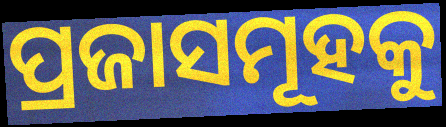
ପ୍ରଜାସମୂହକୁ